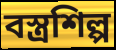
বস্ত্রশিল্প